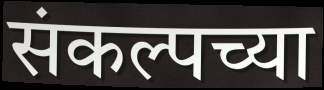
संकल्पच्या